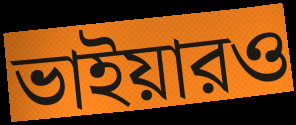
ভাইয়ারও